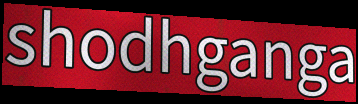
shodhganga